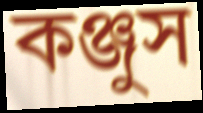
কঞ্জুস